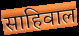
साहिवाल